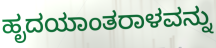
ಹೃದಯಾಂತರಾಳವನ್ನು